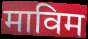
माविम